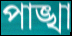
পাঙ্খা